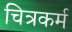
चित्रकर्म